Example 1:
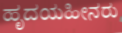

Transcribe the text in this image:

ಹೃದಯಹೀನರು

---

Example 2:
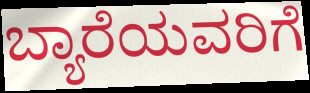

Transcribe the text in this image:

ಬ್ಯಾರೆಯವರಿಗೆ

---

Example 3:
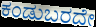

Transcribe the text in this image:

ಕಂಡುಬರದೇ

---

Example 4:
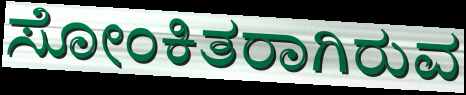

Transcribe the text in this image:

ಸೋಂಕಿತರಾಗಿರುವ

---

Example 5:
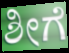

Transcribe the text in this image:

ಶೀಗೆ